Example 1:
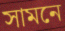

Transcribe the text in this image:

সামনে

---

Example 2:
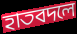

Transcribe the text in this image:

হাতবদলে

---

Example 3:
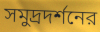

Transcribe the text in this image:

সমুদ্রদর্শনের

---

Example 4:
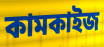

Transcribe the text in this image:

কামকাইজ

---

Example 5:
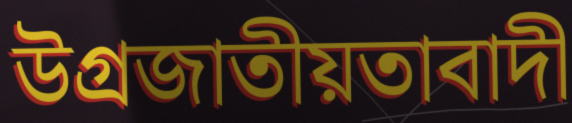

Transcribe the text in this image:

উগ্রজাতীয়তাবাদী